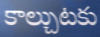
కాల్చుటకు